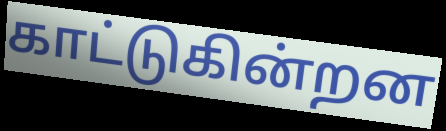
காட்டுகின்றன